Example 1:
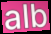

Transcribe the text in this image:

alb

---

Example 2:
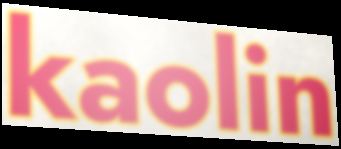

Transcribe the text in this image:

kaolin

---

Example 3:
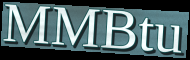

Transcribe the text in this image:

MMBtu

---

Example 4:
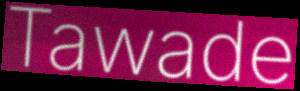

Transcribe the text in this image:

Tawade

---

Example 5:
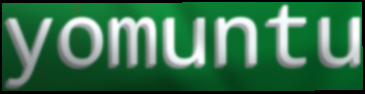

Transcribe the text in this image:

yomuntu